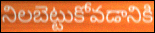
నిలబెట్టుకోవడానికి